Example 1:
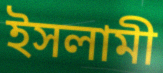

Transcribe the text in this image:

ইসলামী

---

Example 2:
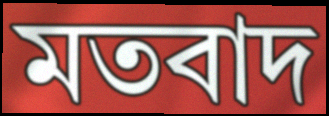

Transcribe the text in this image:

মতবাদ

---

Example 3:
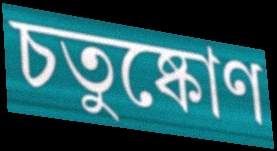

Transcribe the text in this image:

চতুষ্কোণ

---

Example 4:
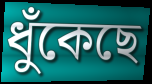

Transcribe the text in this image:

ধুঁকেছে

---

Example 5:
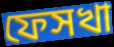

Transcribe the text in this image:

ফেসখা